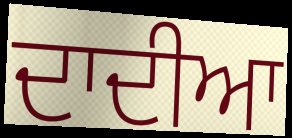
ਦਾਦੀਆ